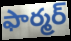
ఫార్మర్